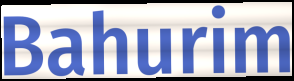
Bahurim